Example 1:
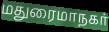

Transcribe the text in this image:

மதுரைமாநகர்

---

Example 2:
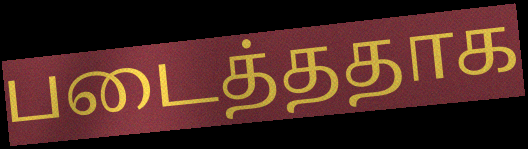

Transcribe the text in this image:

படைத்ததாக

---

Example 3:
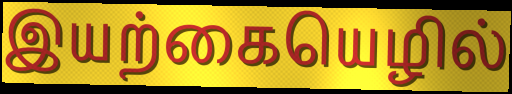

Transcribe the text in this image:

இயற்கையெழில்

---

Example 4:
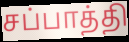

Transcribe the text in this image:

சப்பாத்தி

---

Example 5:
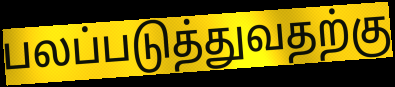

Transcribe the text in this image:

பலப்படுத்துவதற்கு